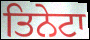
ਤਿਨੇਟਾ